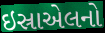
ઇસ્રાએલનો